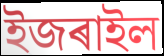
ইজৰাইল